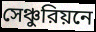
সেঞ্চুরিয়নে